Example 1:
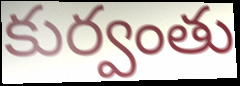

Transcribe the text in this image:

కుర్వంతు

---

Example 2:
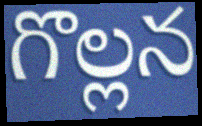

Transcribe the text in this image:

గొల్లన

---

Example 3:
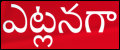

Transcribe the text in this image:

ఎట్లనగా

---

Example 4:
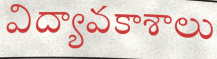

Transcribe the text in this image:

విద్యావకాశాలు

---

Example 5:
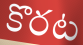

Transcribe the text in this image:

కొరట